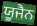
ਯੂਜੈਨ